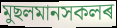
মুছলমানসকলৰ